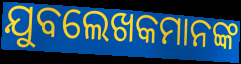
ଯୁବଲେଖକମାନଙ୍କ